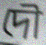
দৌ